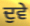
ਦੁਵੇ